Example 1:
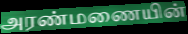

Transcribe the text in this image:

அரண்மணையின்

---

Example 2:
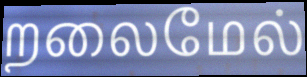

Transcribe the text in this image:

றலைமேல்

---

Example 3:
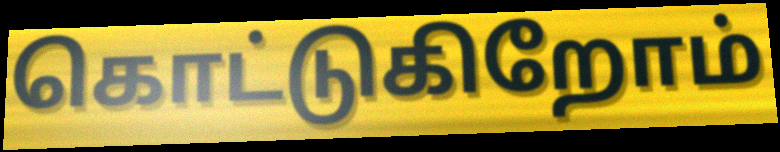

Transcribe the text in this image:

கொட்டுகிறோம்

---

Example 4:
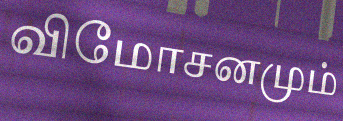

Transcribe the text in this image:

விமோசனமும்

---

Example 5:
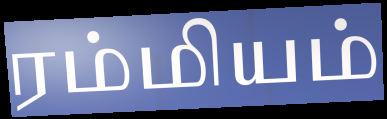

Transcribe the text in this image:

ரம்மியம்